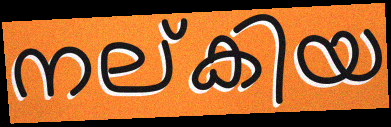
നല്കിയ